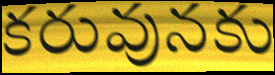
కరువునకు